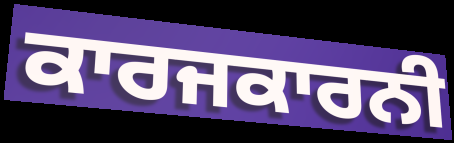
ਕਾਰਜਕਾਰਨੀ